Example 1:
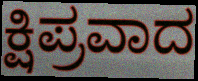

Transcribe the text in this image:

ಕ್ಷಿಪ್ರವಾದ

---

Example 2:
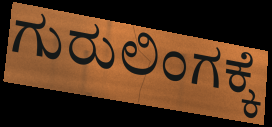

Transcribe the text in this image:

ಗುರುಲಿಂಗಕ್ಕೆ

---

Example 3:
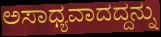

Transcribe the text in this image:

ಅಸಾಧ್ಯವಾದದ್ದನ್ನು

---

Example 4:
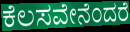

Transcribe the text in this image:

ಕೆಲಸವೇನೆಂದರೆ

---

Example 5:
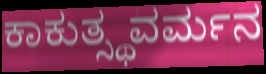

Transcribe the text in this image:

ಕಾಕುತ್ಸ್ಥವರ್ಮನ